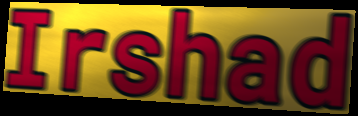
Irshad